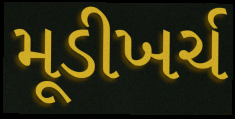
મૂડીખર્ચ